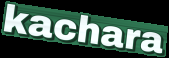
kachara